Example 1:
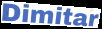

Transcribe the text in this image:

Dimitar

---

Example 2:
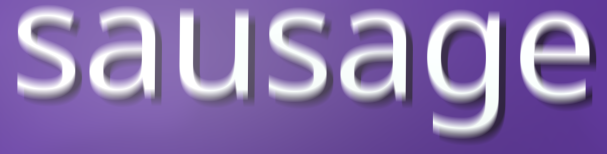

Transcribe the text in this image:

sausage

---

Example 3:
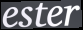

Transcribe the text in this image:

ester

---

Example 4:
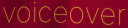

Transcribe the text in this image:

voiceover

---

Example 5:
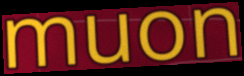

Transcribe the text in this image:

muon